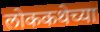
लोककथेच्या